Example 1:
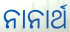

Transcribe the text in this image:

ନାନାର୍ଥ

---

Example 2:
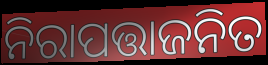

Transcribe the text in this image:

ନିରାପତ୍ତାଜନିତ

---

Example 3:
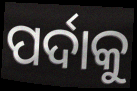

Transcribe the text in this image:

ପର୍ଦାକୁ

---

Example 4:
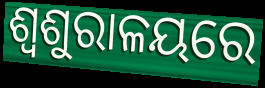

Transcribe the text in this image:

ଶ୍ୱଶୁରାଳୟରେ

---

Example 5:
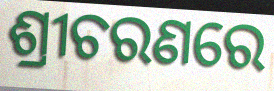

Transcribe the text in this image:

ଶ୍ରୀଚରଣରେ